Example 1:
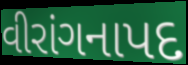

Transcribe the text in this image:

વીરાંગનાપદ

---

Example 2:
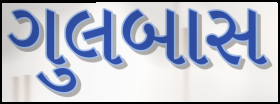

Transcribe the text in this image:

ગુલબાસ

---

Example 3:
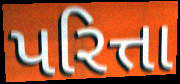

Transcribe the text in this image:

પરિત્તા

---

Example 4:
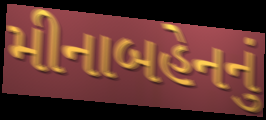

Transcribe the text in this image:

મીનાબહેનનું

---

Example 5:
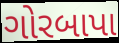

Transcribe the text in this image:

ગોરબાપા